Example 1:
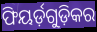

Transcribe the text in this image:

ଫିୟର୍ଡ଼ଗୁଡ଼ିକର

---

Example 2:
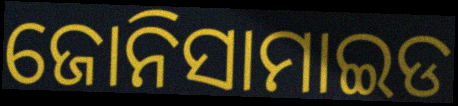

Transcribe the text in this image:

ଜୋନିସାମାଇଡ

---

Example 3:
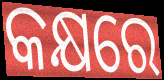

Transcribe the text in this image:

କକ୍ଷରେ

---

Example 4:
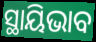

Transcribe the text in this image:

ସ୍ଥାୟିଭାବ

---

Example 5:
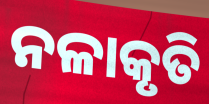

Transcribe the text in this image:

ନଳାକୃତି